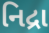
નિદ્રા